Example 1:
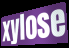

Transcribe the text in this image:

xylose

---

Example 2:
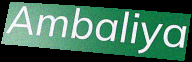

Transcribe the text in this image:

Ambaliya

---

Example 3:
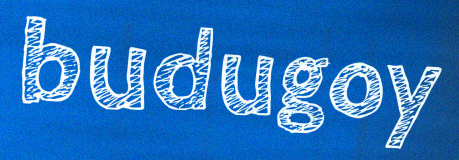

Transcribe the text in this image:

budugoy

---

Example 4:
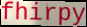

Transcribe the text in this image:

fhirpy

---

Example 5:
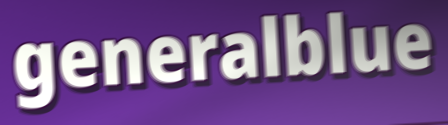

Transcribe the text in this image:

generalblue